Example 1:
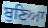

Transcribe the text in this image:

ਬੁਣਿਆ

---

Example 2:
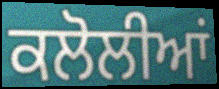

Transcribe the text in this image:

ਕਲੋਲੀਆਂ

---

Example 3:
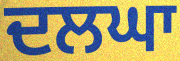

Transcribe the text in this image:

ਦਲਘਾ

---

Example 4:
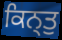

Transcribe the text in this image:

ਕਿਨ੍ਤੁ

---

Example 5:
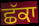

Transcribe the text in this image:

ਛੱਕਾ